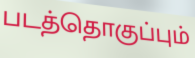
படத்தொகுப்பும்